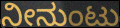
ನೀನುಂಟು